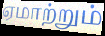
ஏமாற்றும்